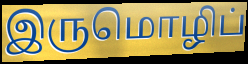
இருமொழிப்